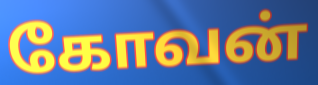
கோவன்